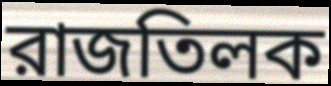
রাজতিলক